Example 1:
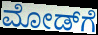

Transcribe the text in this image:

ಮೋಡ್‌ಗೆ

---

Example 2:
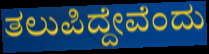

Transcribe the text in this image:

ತಲುಪಿದ್ದೇವೆಂದು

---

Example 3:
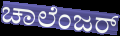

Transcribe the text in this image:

ಚಾಲೆಂಜರ್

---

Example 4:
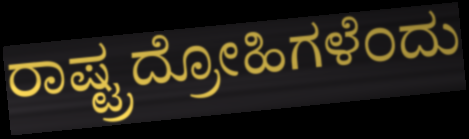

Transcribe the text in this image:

ರಾಷ್ಟ್ರದ್ರೋಹಿಗಳೆಂದು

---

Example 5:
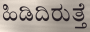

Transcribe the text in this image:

ಹಿಡಿದಿರುತ್ತೆ